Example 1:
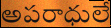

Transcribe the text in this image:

అపరాధులే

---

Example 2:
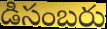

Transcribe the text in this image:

డిసంబరు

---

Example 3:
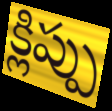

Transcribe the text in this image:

క్లిప్పు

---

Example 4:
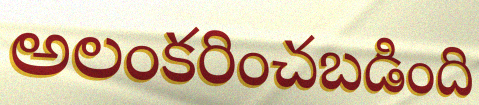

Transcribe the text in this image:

అలంకరించబడింది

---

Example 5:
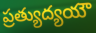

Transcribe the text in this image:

ప్రత్యుద్యయౌ